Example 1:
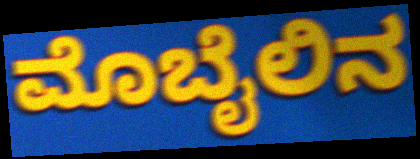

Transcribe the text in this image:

ಮೊಬೈಲಿನ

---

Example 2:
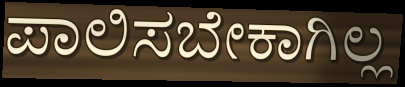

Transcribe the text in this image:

ಪಾಲಿಸಬೇಕಾಗಿಲ್ಲ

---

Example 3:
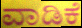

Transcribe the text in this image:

ವಾಡಿಕೆ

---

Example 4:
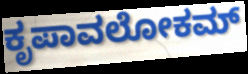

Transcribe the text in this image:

ಕೃಪಾವಲೋಕಮ್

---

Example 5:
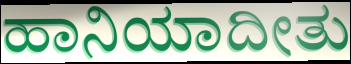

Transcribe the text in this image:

ಹಾನಿಯಾದೀತು